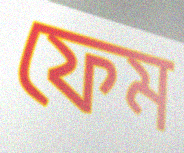
ফেম